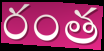
రంత